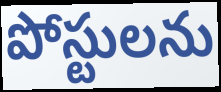
పోస్టులను